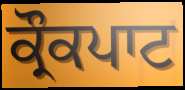
ਕ੍ਰੌਕਪਾਟ